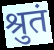
श्रुतं